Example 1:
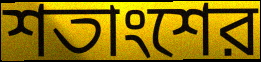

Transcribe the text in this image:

শতাংশের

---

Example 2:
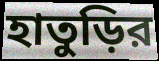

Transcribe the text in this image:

হাতুড়ির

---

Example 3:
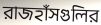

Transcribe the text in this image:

রাজহাঁসগুলির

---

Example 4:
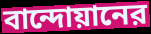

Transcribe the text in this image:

বান্দোয়ানের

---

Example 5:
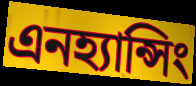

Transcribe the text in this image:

এনহ্যান্সিং